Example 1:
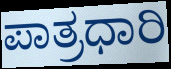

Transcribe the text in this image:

ಪಾತ್ರಧಾರಿ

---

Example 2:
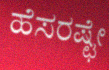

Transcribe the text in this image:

ಹೆಸರಷ್ಟೇ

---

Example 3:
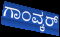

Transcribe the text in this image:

ಗಾಂವ್ಕರ್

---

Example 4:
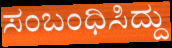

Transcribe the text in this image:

ಸಂಬಂಧಿಸಿದ್ದು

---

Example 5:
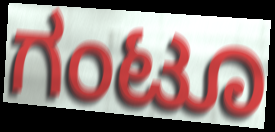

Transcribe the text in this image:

ಗಂಟೂ